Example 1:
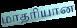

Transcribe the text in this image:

மாதரியான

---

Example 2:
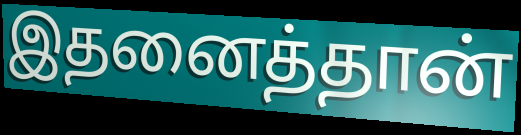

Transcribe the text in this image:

இதனைத்தான்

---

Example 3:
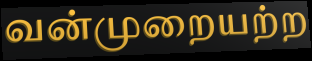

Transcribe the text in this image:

வன்முறையற்ற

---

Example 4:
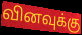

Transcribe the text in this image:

வினவுக்கு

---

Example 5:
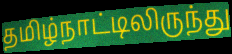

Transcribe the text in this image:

தமிழ்நாட்டிலிருந்து